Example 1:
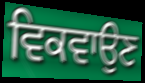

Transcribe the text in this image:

ਵਿਕਵਾਉਣ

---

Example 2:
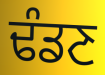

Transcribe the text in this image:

ਢੰਡਣ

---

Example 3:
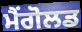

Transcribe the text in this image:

ਮੈਂਗੋਲਡ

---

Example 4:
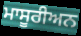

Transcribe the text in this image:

ਮਾਸੂਰੀਅਨ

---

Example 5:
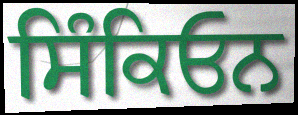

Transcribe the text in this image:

ਸਿੰਕਿਓਨ